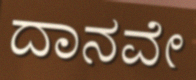
ದಾನವೇ